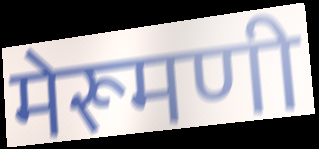
मेरूमणी